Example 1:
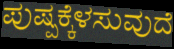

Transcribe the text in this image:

ಪುಷ್ಪಕ್ಕೆಳಸುವುದೆ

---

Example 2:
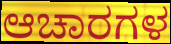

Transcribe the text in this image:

ಆಚಾರಗಳ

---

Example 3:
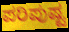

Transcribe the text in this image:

ಪರಿಪುಷ್ಟ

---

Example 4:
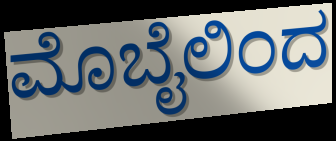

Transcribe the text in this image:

ಮೊಬೈಲಿಂದ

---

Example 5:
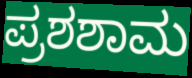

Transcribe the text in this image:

ಪ್ರಶಶಾಮ